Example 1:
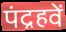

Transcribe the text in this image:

पंद्रहवें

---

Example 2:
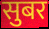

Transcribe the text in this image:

सुबर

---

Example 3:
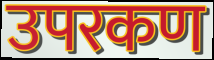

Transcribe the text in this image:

उपरकण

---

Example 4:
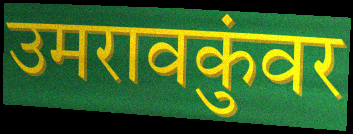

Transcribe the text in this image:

उमरावकुंवर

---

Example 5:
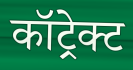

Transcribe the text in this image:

कॉट्रेक्ट